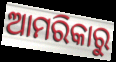
ଆମରିକାରୁ